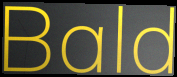
Bald